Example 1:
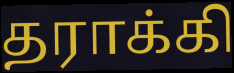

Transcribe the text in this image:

தராக்கி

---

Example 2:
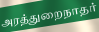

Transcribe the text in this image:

அரத்துறைநாதர்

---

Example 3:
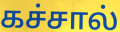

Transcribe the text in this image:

கச்சால்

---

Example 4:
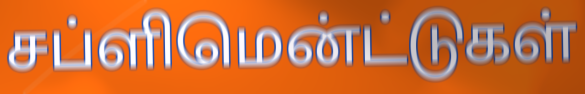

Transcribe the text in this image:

சப்ளிமென்ட்டுகள்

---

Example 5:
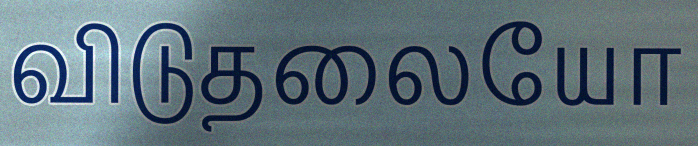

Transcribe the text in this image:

விடுதலையோ